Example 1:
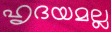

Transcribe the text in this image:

ഹൃദയമല്ല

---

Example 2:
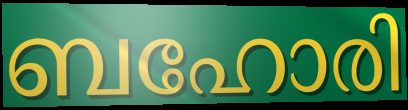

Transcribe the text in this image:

ബഹോരി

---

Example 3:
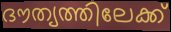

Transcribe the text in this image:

ദൗത്യത്തിലേക്ക്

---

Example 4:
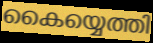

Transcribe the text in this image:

കൈയ്യെത്തി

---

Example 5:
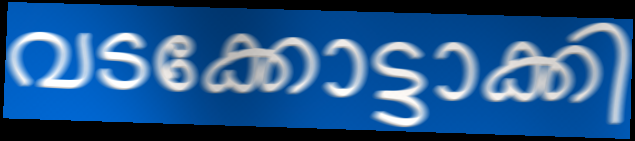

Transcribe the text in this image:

വടക്കോട്ടാക്കി